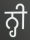
ਨ੍ਹੀ